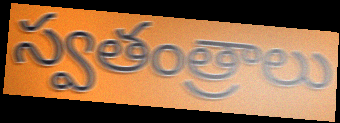
స్వతంత్రాలు